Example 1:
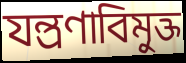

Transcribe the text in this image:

যন্ত্রণাবিমুক্ত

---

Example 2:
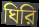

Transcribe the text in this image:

ঘিরি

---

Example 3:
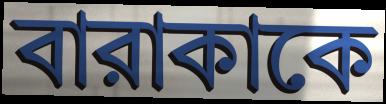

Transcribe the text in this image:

বারাকাকে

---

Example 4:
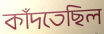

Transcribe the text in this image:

কাঁদতেছিল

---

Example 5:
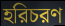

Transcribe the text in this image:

হরিচরণ